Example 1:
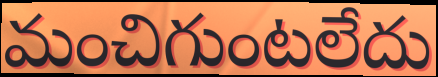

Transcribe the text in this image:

మంచిగుంటలేదు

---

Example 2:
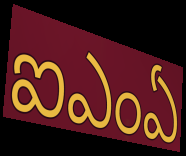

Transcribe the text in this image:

ఐఎంఏ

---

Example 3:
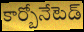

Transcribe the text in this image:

కార్బోనేటెడ్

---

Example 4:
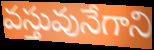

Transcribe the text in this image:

వస్తువునేగాని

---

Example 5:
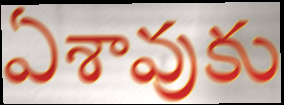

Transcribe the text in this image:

ఏశావుకు